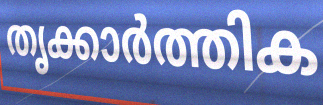
തൃക്കാർത്തിക